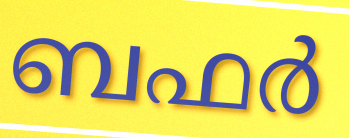
ബഫർ